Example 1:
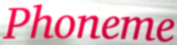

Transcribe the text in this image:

Phoneme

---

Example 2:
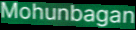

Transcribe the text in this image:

Mohunbagan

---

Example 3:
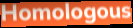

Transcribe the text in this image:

Homologous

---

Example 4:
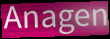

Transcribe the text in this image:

Anagen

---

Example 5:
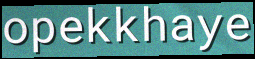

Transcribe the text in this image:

opekkhaye